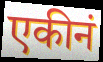
एकीनं